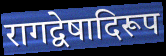
रागद्वेषादिरूप